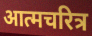
आत्मचरित्र